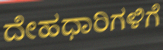
ದೇಹಧಾರಿಗಳಿಗೆ